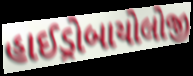
હાઈડ્રોબાયોલોજી